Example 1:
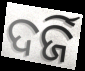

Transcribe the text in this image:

ଦର୍ଜି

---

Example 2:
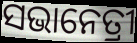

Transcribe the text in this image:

ସଭାନେତ୍ରୀ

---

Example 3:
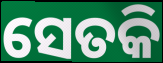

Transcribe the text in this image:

ସେତକି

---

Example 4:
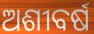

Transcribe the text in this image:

ଅଶୀବର୍ଷ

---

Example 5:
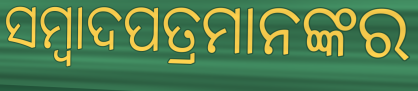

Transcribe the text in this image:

ସମ୍ୱାଦପତ୍ରମାନଙ୍କର